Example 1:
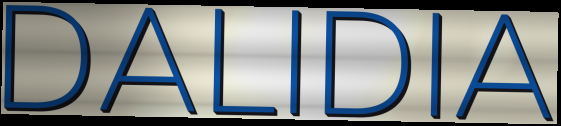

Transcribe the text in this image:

DALIDIA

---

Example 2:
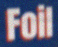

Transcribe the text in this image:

Foil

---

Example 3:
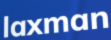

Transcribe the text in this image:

laxman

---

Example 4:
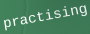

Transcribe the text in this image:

practising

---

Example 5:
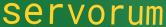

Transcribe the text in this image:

servorum